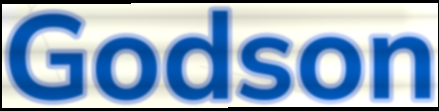
Godson